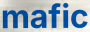
mafic